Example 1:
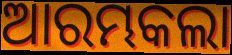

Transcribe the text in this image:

ଆରମ୍ଭକଲା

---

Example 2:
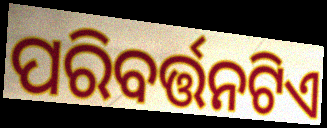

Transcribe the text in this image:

ପରିବର୍ତ୍ତନଟିଏ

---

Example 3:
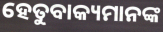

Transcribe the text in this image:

ହେତୁବାକ୍ୟମାନଙ୍କ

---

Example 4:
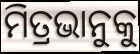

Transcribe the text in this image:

ମିତ୍ରଭାନୁକୁ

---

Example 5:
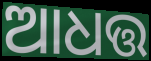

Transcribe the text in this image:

ଆଧତ୍ତ